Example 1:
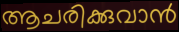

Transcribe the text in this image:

ആചരിക്കുവാൻ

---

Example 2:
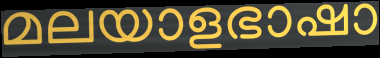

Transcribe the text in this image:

മലയാളഭാഷാ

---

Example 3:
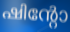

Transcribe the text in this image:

ഷിന്റോ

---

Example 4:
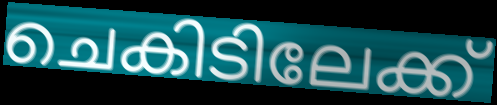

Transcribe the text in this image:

ചെകിടിലേക്ക്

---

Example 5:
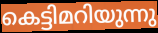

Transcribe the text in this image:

കെട്ടിമറിയുന്നു